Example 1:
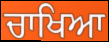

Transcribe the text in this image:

ਚਾਖਿਆ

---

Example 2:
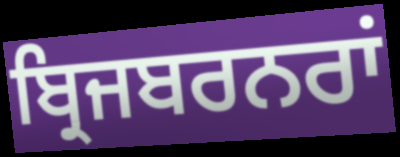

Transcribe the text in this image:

ਬ੍ਰਿਜਬਰਨਰਾਂ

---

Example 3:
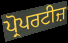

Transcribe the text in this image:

ਪ੍ਰੋਪਰਟੀਜ਼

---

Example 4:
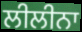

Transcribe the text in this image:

ਲੀਲੀਨਾ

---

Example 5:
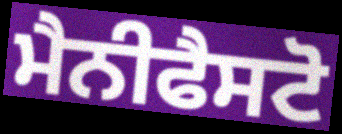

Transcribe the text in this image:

ਮੈਨੀਫੈਸਟੋ